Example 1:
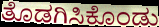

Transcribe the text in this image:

ತೊಡಗಿಸಿಕೊಂಡು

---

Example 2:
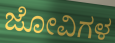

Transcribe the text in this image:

ಜೋವಿಗಳ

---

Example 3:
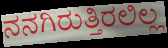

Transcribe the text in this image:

ನನಗಿರುತ್ತಿರಲಿಲ್ಲ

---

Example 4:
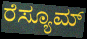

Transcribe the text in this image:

ರೆಸ್ಯೂಮ್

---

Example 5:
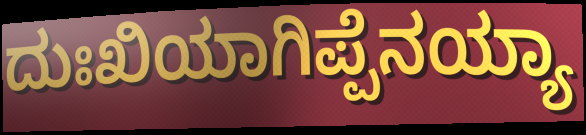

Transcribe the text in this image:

ದುಃಖಿಯಾಗಿಪ್ಪೆನಯ್ಯಾ